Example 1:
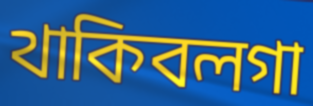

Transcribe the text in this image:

থাকিবলগা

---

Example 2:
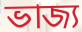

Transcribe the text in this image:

ভাজ্য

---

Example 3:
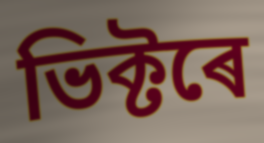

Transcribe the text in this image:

ভিক্টৰে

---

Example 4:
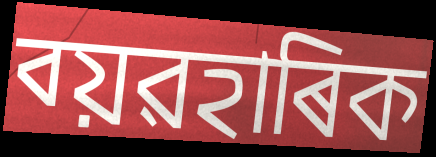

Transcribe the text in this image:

ব্য়ৱহাৰিক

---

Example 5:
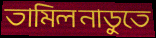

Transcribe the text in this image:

তামিলনাডুতে